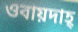
ওবায়দাহ্